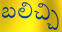
బలిచ్చి